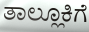
ತಾಲ್ಲೂಕಿಗೆ